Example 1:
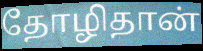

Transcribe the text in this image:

தோழிதான்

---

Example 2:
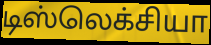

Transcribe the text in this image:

டிஸ்லெக்சியா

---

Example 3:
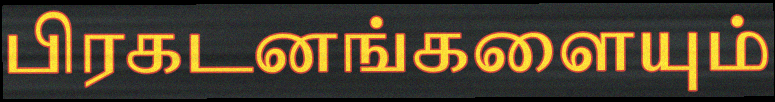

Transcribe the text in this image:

பிரகடனங்களையும்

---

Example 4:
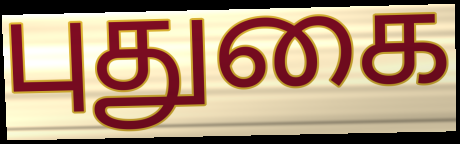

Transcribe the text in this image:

புதுகை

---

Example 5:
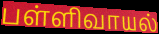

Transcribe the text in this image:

பள்ளிவாயல்